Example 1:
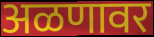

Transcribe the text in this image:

अळणावर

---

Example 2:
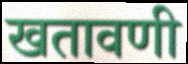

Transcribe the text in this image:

खतावणी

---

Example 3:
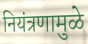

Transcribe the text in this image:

नियंत्रणामुळे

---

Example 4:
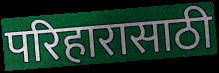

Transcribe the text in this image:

परिहारासाठी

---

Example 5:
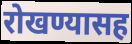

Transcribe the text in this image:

रोखण्यासह